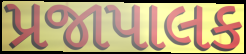
પ્રજાપાલક